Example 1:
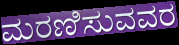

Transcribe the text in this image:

ಮರಣಿಸುವವರ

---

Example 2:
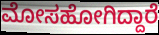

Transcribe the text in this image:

ಮೋಸಹೋಗಿದ್ದಾರೆ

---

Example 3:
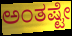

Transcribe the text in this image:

ಅಂತಷ್ಟೇ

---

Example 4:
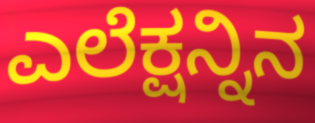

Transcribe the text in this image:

ಎಲೆಕ್ಷನ್ನಿನ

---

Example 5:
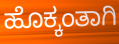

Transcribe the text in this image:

ಹೊಕ್ಕಂತಾಗಿ